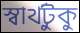
স্বার্থটুকু